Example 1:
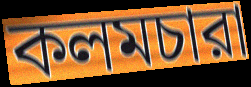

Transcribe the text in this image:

কলমচারা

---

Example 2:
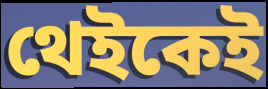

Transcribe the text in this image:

থেইকেই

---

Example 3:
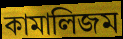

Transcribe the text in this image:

কামালিজম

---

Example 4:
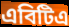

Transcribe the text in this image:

এবিটিএ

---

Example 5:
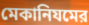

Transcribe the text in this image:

মেকানিযমের